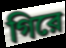
গিরে